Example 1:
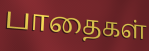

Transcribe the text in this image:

பாதைகள்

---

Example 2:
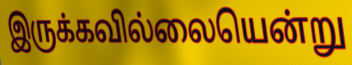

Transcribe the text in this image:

இருக்கவில்லையென்று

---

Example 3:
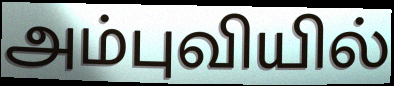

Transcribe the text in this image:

அம்புவியில்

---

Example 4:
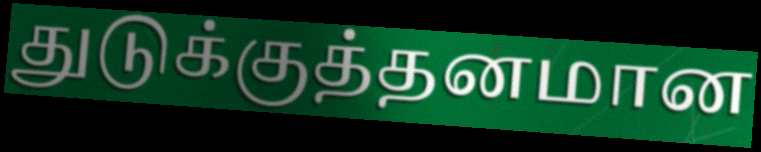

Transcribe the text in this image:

துடுக்குத்தனமான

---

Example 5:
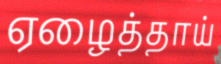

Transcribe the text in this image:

ஏழைத்தாய்